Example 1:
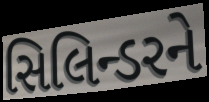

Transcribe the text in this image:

સિલિન્ડરને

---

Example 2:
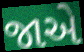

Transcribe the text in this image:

જાએ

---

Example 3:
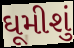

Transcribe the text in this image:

ઘૂમીશું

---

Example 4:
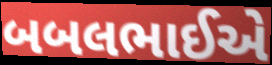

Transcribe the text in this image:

બબલભાઈએ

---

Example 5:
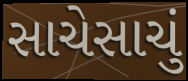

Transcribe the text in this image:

સાચેસાચું